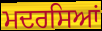
ਮਦਰਸਿਆਂ